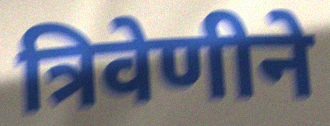
त्रिवेणीने